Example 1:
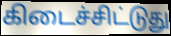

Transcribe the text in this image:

கிடைச்சிட்டுது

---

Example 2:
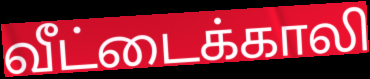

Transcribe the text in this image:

வீட்டைக்காலி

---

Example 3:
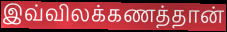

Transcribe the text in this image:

இவ்விலக்கணத்தான்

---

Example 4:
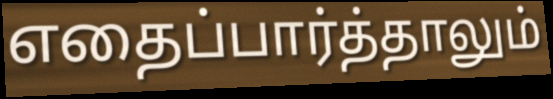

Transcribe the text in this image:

எதைப்பார்த்தாலும்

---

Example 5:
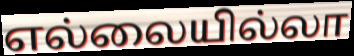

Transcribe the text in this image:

எல்லையில்லா